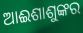
ଆଈଶାଶୁଙ୍କର